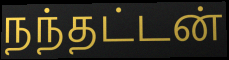
நந்தட்டன்